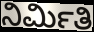
ನಿರ್ಮಿತಿ